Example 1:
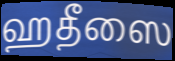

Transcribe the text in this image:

ஹதீஸை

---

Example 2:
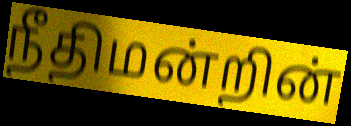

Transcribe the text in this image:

நீதிமன்றின்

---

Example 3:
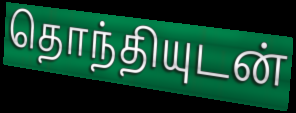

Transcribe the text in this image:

தொந்தியுடன்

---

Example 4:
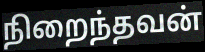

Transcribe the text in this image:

நிறைந்தவன்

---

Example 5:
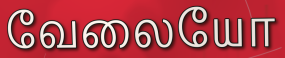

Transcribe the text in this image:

வேலையோ